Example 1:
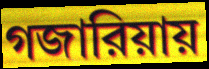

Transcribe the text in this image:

গজারিয়ায়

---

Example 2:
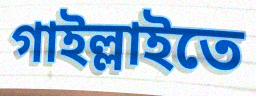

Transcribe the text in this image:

গাইল্লাইতে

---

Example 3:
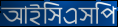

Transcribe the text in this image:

আইসিএসপি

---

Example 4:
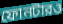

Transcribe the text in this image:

ফোনটারও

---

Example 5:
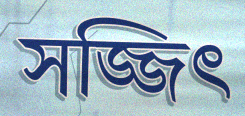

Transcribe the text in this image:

সজ্জিৎ